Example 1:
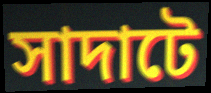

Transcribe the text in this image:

সাদাটে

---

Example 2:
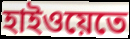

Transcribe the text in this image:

হাইওয়েতে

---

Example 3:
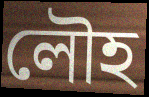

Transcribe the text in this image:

লৌহ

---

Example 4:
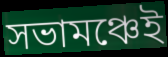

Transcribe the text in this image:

সভামঞ্চেই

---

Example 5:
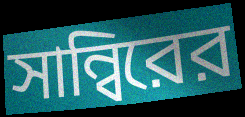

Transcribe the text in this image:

সান্বিরের